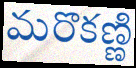
మరొకణ్ణి